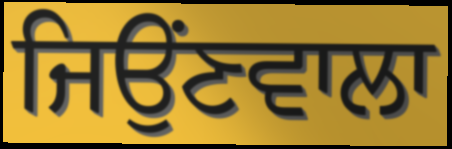
ਜਿਉਂਣਵਾਲਾ